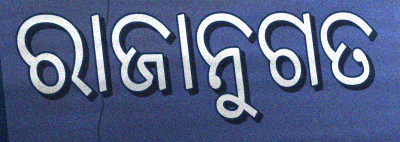
ରାଜାନୁଗତ